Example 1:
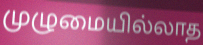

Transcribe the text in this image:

முழுமையில்லாத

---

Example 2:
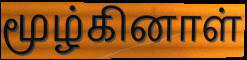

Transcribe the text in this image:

மூழ்கினாள்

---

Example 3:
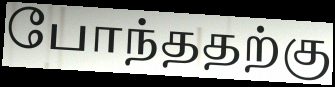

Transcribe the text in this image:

போந்ததற்கு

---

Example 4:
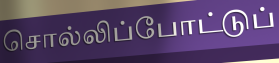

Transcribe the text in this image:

சொல்லிப்போட்டுப்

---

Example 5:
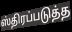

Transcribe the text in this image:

ஸ்திரப்படுத்த